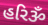
હરિૐ